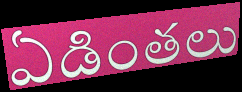
ఏడింతలు